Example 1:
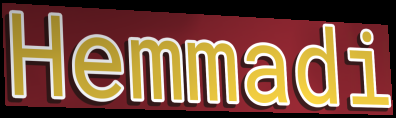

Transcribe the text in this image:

Hemmadi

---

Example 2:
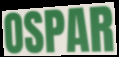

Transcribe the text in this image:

OSPAR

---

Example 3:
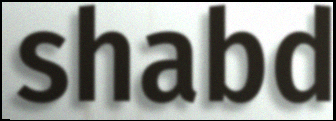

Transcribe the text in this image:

shabd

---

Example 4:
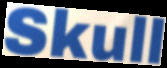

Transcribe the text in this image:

Skull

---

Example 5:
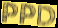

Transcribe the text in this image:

PPD